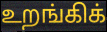
உறங்கிக்